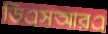
ডিএসআরএ